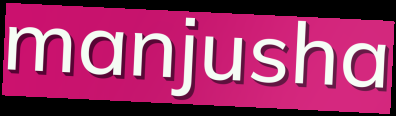
manjusha